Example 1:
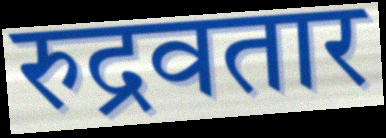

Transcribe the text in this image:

रुद्रवतार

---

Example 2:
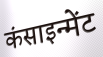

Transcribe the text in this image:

कंसाइन्मेंट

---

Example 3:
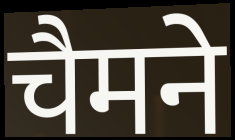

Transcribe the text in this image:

चैमने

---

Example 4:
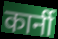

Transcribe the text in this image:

कार्नी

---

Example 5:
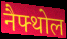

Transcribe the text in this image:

नैफ्थोल